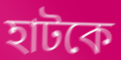
হাটকে